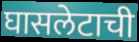
घासलेटाची